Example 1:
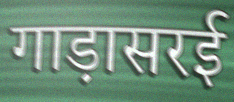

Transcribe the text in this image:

गाड़ासरई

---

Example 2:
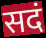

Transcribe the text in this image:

सदं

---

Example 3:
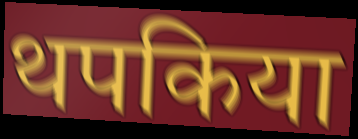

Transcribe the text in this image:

थपकिया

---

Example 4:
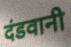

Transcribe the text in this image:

दंडवानी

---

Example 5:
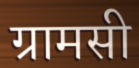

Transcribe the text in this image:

ग्रामसी